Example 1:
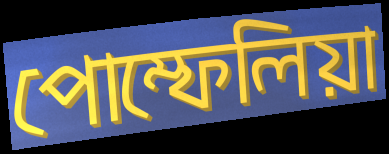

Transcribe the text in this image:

পোম্ফেলিয়া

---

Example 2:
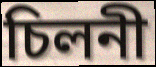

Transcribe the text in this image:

চিলনী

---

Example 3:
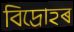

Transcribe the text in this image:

বিদ্ৰোহৰ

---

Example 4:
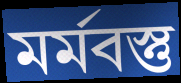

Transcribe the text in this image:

মৰ্মবস্তু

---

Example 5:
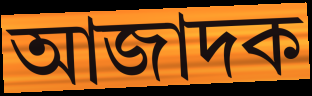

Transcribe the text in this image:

আজাদক